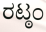
ರಟ್ಠಂ